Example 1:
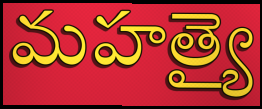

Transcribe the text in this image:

మహత్యై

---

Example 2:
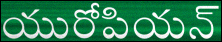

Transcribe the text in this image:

యురోపియన్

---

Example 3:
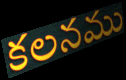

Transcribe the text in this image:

కలనము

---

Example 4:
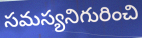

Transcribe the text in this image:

సమస్యనిగురించి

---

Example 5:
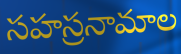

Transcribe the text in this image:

సహస్రనామాల